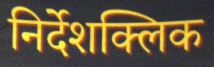
निर्देशक्लिक